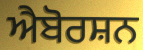
ਐਬੋਰਸ਼ਨ